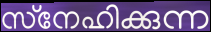
സ്‌നേഹിക്കുന്ന